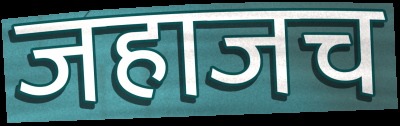
जहाजच